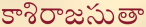
కాశిరాజసుతా